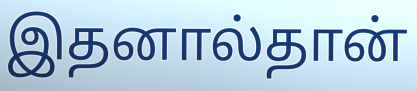
இதனால்தான்